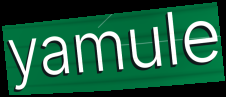
yamule